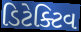
ડિટેક્ટિવ